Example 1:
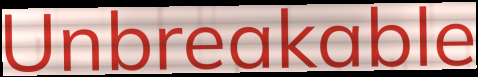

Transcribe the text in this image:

Unbreakable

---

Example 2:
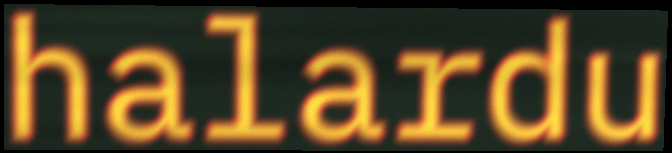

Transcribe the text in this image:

halardu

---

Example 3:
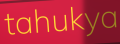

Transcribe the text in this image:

tahukya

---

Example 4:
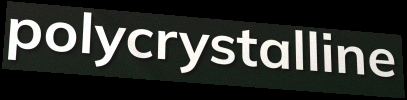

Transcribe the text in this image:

polycrystalline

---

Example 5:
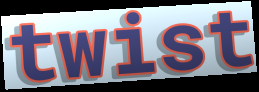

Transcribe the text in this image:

twist